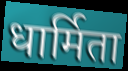
धार्मिता